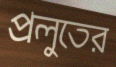
প্রলুতের